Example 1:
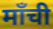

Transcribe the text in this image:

माँची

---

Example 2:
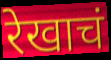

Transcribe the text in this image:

रेखाचं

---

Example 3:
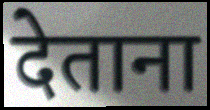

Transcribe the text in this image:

देताना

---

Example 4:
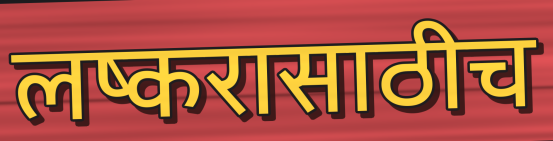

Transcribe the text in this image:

लष्करासाठीच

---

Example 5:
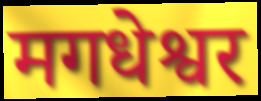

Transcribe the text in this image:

मगधेश्वर